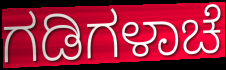
ಗಡಿಗಳಾಚೆ